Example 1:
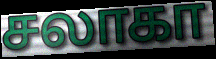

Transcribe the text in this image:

சலாகா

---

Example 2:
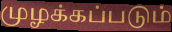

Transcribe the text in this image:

முழக்கப்படும்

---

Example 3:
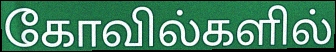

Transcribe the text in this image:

கோவில்களில்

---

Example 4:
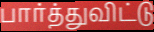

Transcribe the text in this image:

பார்த்துவிட்டு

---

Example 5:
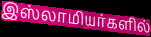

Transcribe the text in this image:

இஸ்லாமியர்களில்